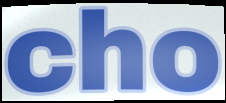
cho